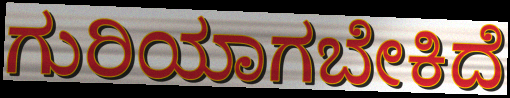
ಗುರಿಯಾಗಬೇಕಿದೆ